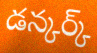
డన్కర్క్